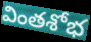
వింతశోభ